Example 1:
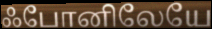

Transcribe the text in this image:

ஃபோனிலேயே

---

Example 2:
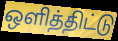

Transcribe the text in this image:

ஒளித்திட்டு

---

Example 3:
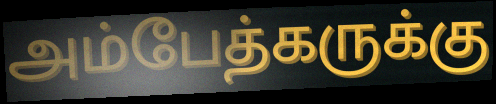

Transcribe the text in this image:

அம்பேத்கருக்கு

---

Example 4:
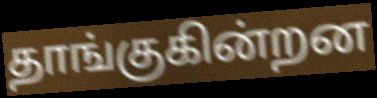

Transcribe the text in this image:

தாங்குகின்றன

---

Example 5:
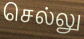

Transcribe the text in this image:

செல்லு